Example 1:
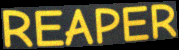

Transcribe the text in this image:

REAPER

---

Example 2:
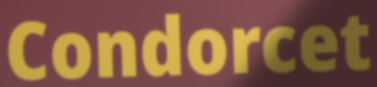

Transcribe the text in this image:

Condorcet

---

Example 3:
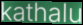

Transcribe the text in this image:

kathalu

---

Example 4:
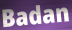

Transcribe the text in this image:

Badan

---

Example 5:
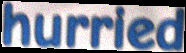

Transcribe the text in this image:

hurried